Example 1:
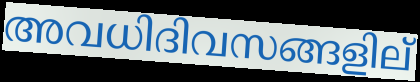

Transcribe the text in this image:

അവധിദിവസങ്ങളില്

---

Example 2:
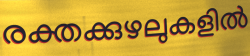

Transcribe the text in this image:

രക്തക്കുഴലുകളിൽ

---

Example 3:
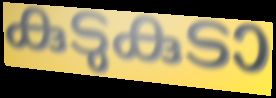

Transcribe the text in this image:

കുടുകുടാ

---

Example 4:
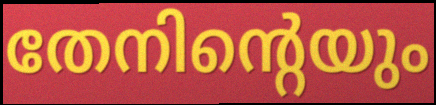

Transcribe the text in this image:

തേനിന്റെയും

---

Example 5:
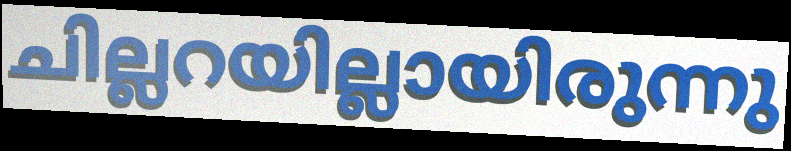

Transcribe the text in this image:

ചില്ലറയില്ലായിരുന്നു